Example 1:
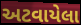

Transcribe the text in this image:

અટવાયેલા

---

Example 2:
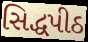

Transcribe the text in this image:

સિદ્ધપીઠ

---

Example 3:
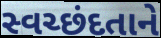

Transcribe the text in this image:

સ્વચ્છંદતાને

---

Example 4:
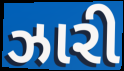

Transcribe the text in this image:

ઝારી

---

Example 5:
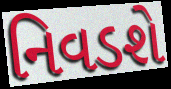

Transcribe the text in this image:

નિવડશે